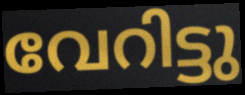
വേറിട്ടു